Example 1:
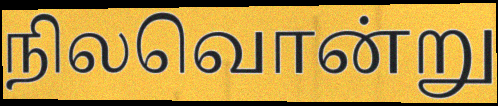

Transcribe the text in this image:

நிலவொன்று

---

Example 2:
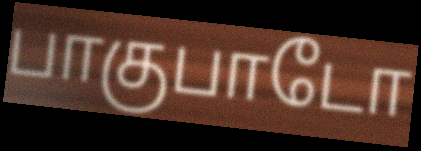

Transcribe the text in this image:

பாகுபாடோ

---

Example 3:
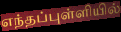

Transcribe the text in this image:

எந்தப்புள்ளியில்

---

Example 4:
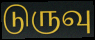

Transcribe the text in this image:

டுருவு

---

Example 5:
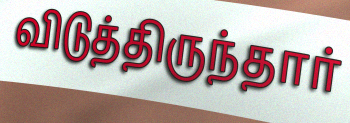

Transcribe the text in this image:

விடுத்திருந்தார்